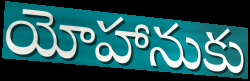
యోహానుకు